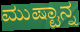
ಮುಷ್ಟಾನ್ನ